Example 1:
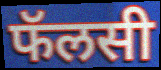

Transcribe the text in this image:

फॅलसी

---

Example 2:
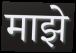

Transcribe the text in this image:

माझे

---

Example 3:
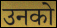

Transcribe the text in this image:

उनको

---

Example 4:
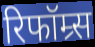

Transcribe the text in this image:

रिफॉम्र्स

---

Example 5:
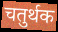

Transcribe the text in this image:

चतुर्थक